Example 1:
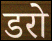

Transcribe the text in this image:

डरो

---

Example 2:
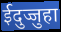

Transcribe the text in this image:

ईदुज्जुहा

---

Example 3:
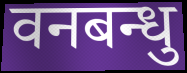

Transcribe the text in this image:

वनबन्धु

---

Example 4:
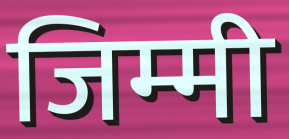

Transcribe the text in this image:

जिम्मी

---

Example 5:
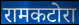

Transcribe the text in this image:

रामकटोरा